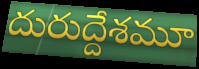
దురుద్దేశమూ